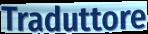
Traduttore